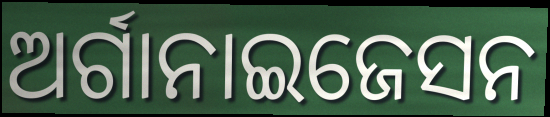
ଅର୍ଗାନାଇଜେସନ